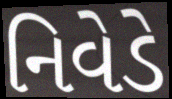
નિવેડે